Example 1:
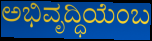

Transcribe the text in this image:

ಅಭಿವೃದ್ಧಿಯೆಂಬ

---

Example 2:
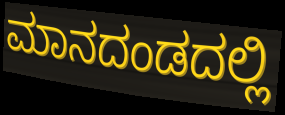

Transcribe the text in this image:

ಮಾನದಂಡದಲ್ಲಿ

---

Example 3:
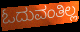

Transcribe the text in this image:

ಓದುವಂತಿಲ್ಲ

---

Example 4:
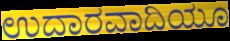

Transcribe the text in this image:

ಉದಾರವಾದಿಯೂ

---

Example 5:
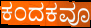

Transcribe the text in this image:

ಕಂದಕವೂ